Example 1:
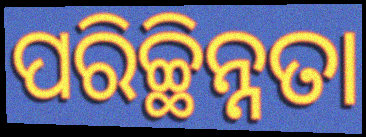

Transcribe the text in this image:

ପରିଚ୍ଛିନ୍ନତା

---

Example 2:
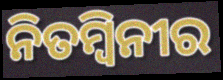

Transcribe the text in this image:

ନିତମ୍ବିନୀର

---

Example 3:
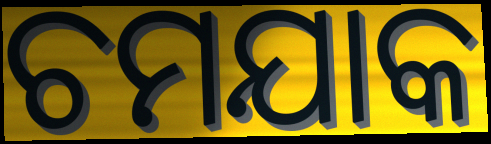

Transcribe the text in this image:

ଚମଯାକ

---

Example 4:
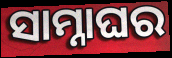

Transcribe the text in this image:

ସାମ୍ନାଘର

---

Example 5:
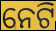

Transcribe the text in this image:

ନେଟି